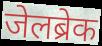
जेलब्रेक